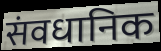
संवधानिक